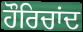
ਹੌਰਿਚਾਂਦ